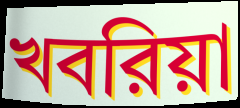
খবরিয়া